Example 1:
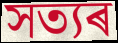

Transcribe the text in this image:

সত্যৰ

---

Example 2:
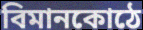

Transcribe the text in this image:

বিমানকোঠে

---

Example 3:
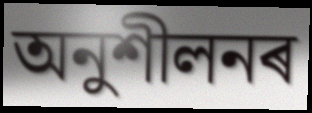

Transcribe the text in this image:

অনুশীলনৰ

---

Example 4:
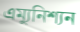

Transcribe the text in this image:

এম্যুনিশ্যন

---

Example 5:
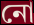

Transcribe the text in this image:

নো